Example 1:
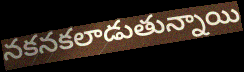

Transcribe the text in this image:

నకనకలాడుతున్నాయి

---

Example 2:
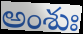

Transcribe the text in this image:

అంశుః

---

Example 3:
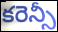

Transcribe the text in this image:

కరెన్సీ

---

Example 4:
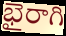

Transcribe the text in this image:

భైరాగి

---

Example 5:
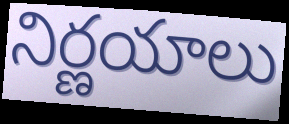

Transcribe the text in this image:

నిర్ణయాలు